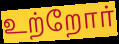
உற்றோர்